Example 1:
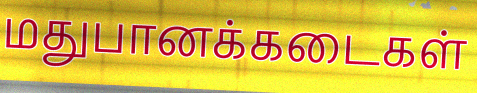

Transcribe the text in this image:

மதுபானக்கடைகள்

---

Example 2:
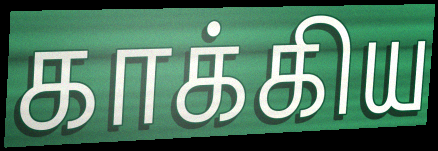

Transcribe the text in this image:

காக்கிய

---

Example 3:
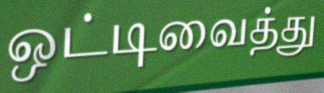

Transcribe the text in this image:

ஒட்டிவைத்து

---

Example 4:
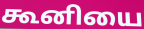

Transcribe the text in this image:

கூனியை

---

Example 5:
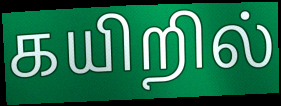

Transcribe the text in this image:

கயிறில்